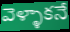
వెళ్ళాకనే